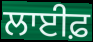
ਲਾਈਫ਼